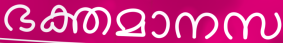
ഭക്തമാനസ